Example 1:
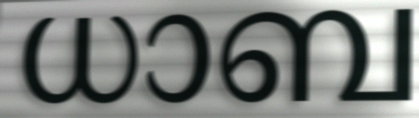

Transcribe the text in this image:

ധാബ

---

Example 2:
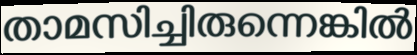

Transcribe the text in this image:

താമസിച്ചിരുന്നെങ്കിൽ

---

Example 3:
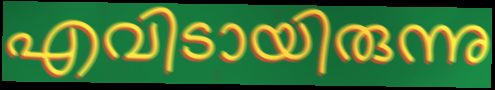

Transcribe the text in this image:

എവിടായിരുന്നു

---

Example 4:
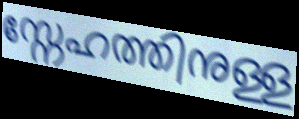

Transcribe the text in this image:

സ്നേഹത്തിനുള്ള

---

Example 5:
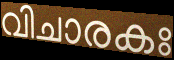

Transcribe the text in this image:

വിചാരകഃ